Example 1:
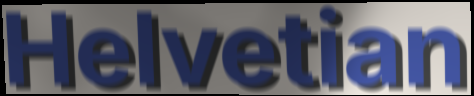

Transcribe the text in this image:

Helvetian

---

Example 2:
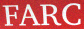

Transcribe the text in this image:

FARC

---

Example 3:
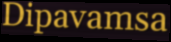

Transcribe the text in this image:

Dipavamsa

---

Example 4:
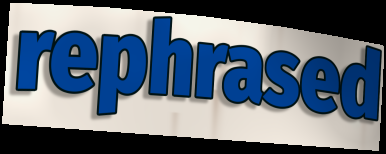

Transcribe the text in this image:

rephrased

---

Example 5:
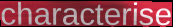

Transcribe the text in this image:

characterise